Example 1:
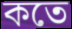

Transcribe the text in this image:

কতে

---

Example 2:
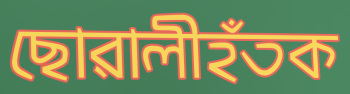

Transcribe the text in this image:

ছোৱালীহঁতক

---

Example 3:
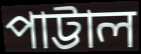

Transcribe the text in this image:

পাট্টাল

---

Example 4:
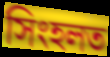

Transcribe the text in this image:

সিংহলত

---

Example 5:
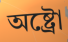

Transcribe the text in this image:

অষ্ট্ৰো